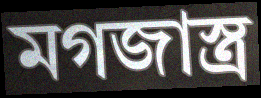
মগজাস্ত্র